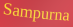
Sampurna